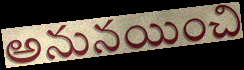
అనునయించి